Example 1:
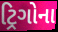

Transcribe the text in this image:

ટ્રિગોના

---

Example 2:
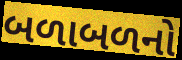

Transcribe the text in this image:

બળાબળનો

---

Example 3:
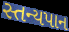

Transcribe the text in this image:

સ્તન્યપાન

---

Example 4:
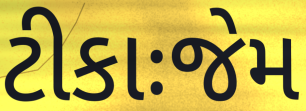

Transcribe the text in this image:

ટીકાઃજેમ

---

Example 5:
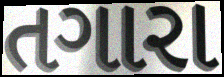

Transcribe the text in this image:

તગારા